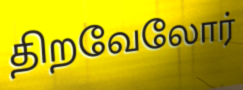
திறவேலோர்